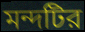
মন্দটির